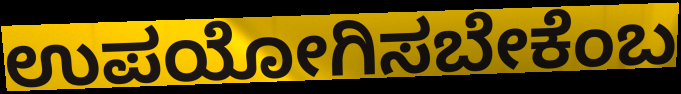
ಉಪಯೋಗಿಸಬೇಕೆಂಬ